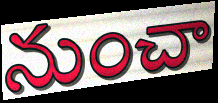
నుంచా